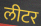
लीटर